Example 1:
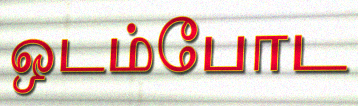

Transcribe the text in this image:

ஒடம்போட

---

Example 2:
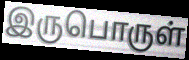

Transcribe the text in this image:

இருபொருள்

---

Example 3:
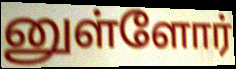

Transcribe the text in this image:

னுள்ளோர்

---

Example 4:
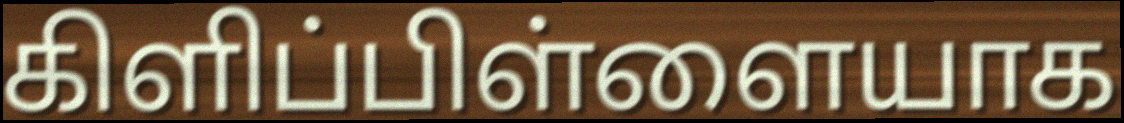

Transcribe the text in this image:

கிளிப்பிள்ளையாக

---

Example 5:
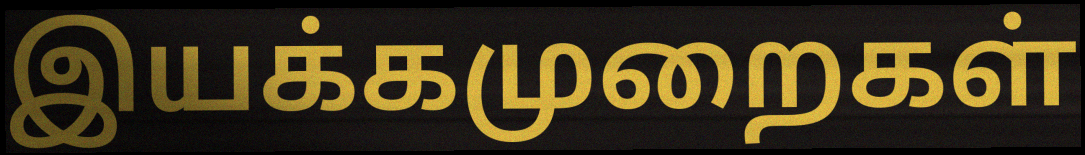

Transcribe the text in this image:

இயக்கமுறைகள்